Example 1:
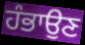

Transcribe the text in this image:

ਹੰਭਾਉਣ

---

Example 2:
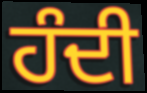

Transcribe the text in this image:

ਹੰਦੀ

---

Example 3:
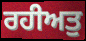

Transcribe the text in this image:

ਰਹੀਅਤੁ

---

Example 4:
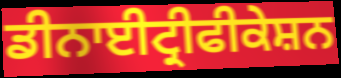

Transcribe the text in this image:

ਡੀਨਾਈਟ੍ਰੀਫੀਕੇਸ਼ਨ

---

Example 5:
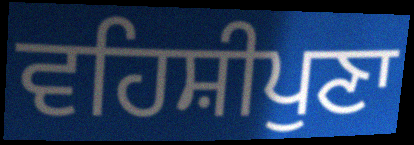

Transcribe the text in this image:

ਵਹਿਸ਼ੀਪੁਣਾ